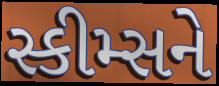
સ્કીમ્સને